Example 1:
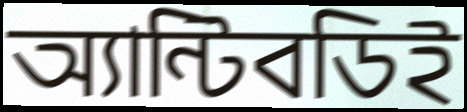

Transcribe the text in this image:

অ্যান্টিবডিই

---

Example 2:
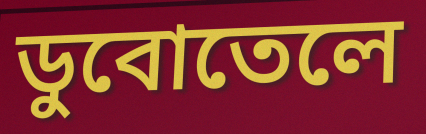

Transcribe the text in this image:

ডুবোতেলে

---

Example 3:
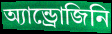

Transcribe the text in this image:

অ্যান্ড্রোজিনি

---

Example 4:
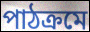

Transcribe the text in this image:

পাঠক্রমে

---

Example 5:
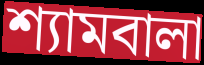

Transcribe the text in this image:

শ্যামবালা